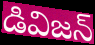
డివిజన్